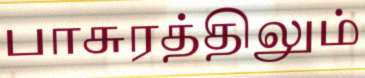
பாசுரத்திலும்